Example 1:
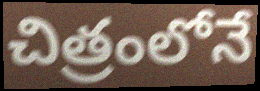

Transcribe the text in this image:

చిత్రంలోనే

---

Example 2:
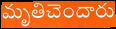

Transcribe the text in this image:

మృతిచెందారు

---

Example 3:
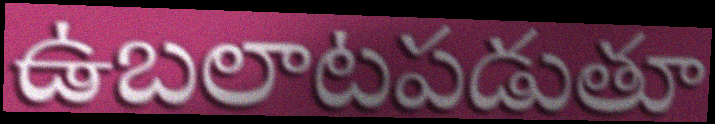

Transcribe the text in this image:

ఉబలాటపడుతూ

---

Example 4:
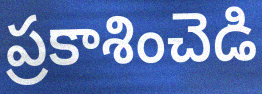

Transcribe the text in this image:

ప్రకాశించెడి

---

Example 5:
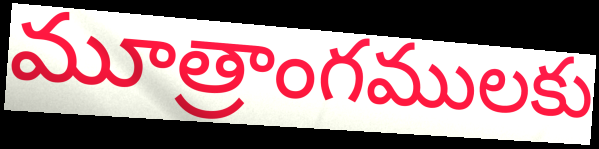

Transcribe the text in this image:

మూత్రాంగములకు